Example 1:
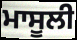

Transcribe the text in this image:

ਮਾਸੂਲੀ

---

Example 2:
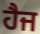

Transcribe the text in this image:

ਹੈਜ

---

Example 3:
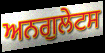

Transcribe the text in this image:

ਅਨਗੁਲੇਟਸ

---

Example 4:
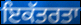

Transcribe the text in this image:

ਇਕੱਤਰਤਾ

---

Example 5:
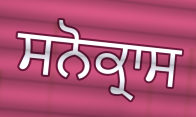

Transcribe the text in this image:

ਸਨੋਕ੍ਰਾਸ